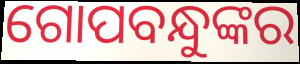
ଗୋପବନ୍ଧୁଙ୍କର